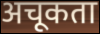
अचूकता